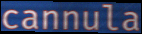
cannula